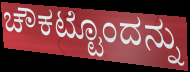
ಚೌಕಟ್ಟೊಂದನ್ನು